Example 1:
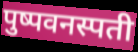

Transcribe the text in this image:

पुष्पवनस्पती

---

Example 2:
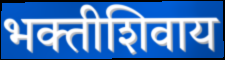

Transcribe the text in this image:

भक्तीशिवाय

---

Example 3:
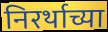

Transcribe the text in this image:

निरर्थाच्या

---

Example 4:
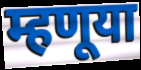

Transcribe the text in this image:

म्हणूया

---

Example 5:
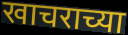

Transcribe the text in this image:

खाचराच्या